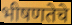
भीषणतेचे